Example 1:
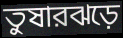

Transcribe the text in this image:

তুষারঝড়ে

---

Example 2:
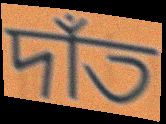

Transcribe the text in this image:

দাঁত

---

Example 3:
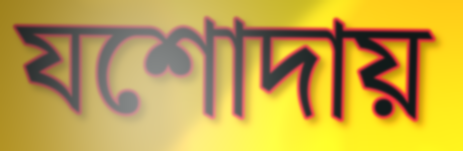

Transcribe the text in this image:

যশোদায়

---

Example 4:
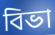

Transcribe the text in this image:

বিভা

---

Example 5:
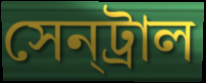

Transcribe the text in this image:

সেন্‌ট্রাল